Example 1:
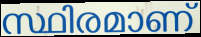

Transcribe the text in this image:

സ്ഥിരമാണ്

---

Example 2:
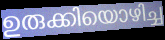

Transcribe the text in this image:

ഉരുക്കിയൊഴിച്ച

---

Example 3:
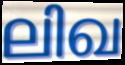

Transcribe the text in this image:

ലിഖ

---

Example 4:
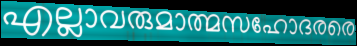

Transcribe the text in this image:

എല്ലാവരുമാത്മസഹോദരരെ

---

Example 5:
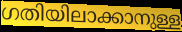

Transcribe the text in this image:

ഗതിയിലാക്കാനുള്ള